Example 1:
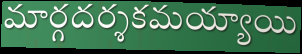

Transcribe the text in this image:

మార్గదర్శకమయ్యాయి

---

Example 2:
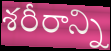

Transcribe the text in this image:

శరీరాన్ని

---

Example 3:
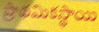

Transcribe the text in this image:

ప్రాథమికస్థాయి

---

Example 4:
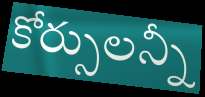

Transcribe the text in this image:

కోర్సులన్నీ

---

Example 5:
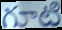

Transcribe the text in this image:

గూటి